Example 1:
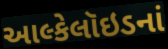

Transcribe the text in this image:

આલ્કેલૉઇડનાં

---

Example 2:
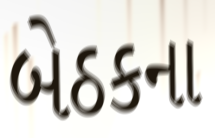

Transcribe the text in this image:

બેઠકના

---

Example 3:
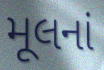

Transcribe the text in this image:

મૂલનાં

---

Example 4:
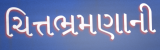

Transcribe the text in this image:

ચિત્તભ્રમણાની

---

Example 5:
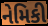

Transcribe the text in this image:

નેમિકી